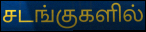
சடங்குகளில்